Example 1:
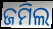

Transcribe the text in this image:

ଜମିଲ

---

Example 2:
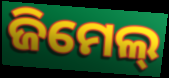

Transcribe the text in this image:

ଜିମେଲ୍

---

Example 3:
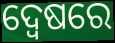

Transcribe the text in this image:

ଦ୍ୱେଷରେ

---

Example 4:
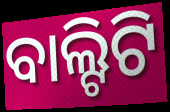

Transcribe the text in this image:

ବାଲ୍ଟିଟି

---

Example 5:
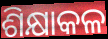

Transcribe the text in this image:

ଶିକ୍ଷାକଳ